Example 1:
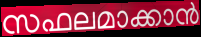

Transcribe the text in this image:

സഫലമാക്കാൻ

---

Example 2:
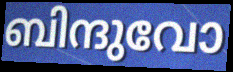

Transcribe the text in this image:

ബിന്ദുവോ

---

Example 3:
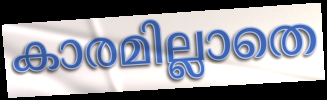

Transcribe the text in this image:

കാരമില്ലാതെ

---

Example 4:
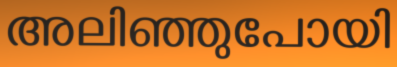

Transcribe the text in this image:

അലിഞ്ഞുപോയി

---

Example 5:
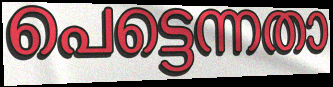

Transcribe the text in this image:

പെട്ടെന്നതാ